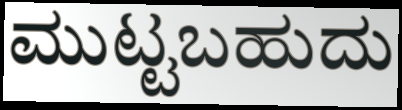
ಮುಟ್ಟಬಹುದು